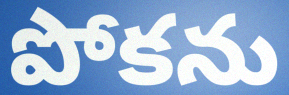
పోకను